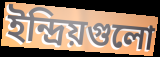
ইন্দ্রিয়গুলো